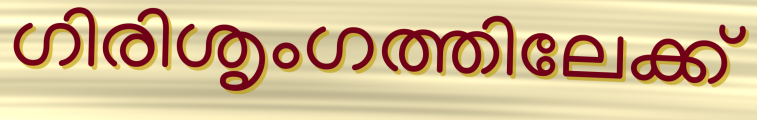
ഗിരിശൃംഗത്തിലേക്ക്